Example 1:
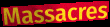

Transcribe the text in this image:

Massacres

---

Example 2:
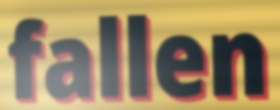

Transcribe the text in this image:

fallen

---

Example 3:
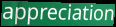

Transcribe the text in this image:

appreciation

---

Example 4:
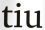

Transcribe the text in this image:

tiu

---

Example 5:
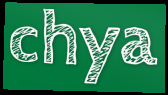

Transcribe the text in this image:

chya